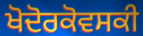
ਖੋਦੋਰਕੋਵਸਕੀ